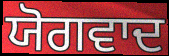
ਯੋਗਵਾਦ